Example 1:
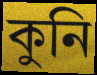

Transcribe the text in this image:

কুনি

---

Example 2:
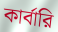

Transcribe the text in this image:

কার্বারি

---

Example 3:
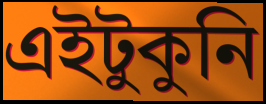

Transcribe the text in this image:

এইটুকুনি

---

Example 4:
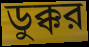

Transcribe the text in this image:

ডুক্কর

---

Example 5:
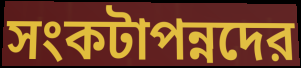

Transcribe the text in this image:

সংকটাপন্নদের